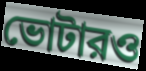
ভোটারও